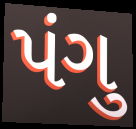
પંગુ